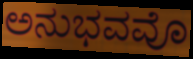
ಅನುಭವವೊ